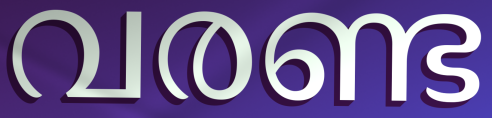
വരണ്ട